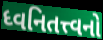
ધ્વનિતત્ત્વનો